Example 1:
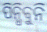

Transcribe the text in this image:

ପିନ୍ଧିବୁନି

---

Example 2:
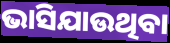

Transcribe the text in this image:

ଭାସିଯାଉଥିବା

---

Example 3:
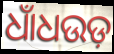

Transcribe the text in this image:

ଧାଁଧଉଡ଼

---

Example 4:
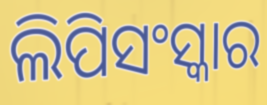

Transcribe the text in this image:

ଲିପିସଂସ୍କାର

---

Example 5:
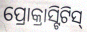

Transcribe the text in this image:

ପ୍ରୋକ୍ରାସ୍ଟିଟିସ୍